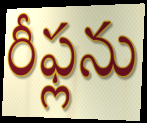
రీఫ్లను